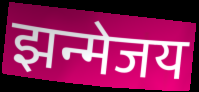
झन्मेजय